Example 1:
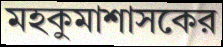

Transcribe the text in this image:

মহকুমাশাসকের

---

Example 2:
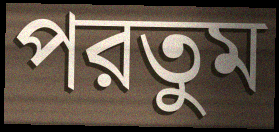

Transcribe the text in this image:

পরতুম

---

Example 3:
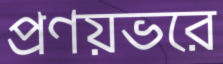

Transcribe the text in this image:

প্রণয়ভরে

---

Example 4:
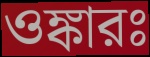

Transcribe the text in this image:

ওঙ্কারঃ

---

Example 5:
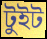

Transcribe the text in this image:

টুইট